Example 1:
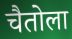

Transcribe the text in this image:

चैतोला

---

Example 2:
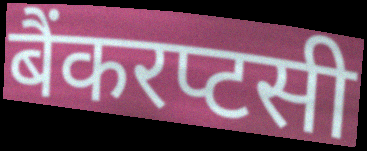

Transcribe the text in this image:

बैंकरप्टसी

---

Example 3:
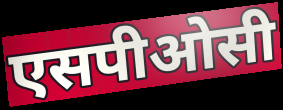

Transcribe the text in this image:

एसपीओसी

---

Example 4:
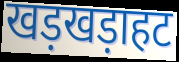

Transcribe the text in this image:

खड़खड़ाहट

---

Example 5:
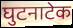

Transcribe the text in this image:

घुटनाटेक